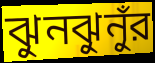
ঝুনঝুনুঁর